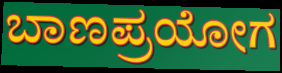
ಬಾಣಪ್ರಯೋಗ